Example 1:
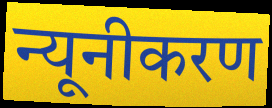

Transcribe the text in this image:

न्यूनीकरण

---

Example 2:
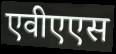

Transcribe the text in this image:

एवीएएस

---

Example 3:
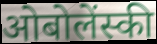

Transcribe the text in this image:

ओबोलेंस्की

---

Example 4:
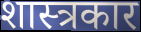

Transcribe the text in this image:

शास्त्रकार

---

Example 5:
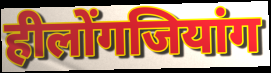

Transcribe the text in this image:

हीलोंगजियांग